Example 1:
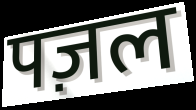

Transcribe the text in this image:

पज़ल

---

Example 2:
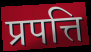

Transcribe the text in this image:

प्रपत्ति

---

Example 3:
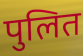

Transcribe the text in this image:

पुलित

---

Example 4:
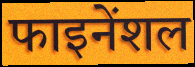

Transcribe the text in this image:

फाइनेंशल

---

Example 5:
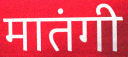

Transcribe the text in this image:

मातंगी